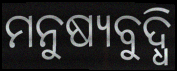
ମନୁଷ୍ୟବୁଦ୍ଧି